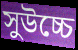
সুউচ্চে